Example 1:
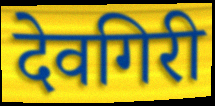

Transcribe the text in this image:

देवगिरी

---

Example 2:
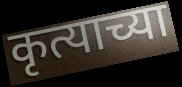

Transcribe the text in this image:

कृत्याच्या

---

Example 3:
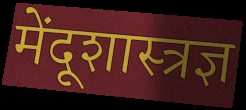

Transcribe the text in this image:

मेंदूशास्त्रज्ञ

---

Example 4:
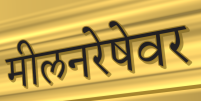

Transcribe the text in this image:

मीलनरेषेवर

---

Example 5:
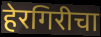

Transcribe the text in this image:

हेरगिरीचा